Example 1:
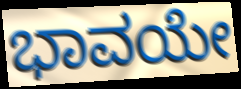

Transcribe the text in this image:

ಭಾವಯೇ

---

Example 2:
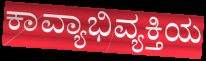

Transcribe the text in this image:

ಕಾವ್ಯಾಭಿವ್ಯಕ್ತಿಯ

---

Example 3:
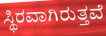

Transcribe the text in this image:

ಸ್ಥಿರವಾಗಿರುತ್ತವೆ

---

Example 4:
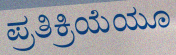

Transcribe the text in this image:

ಪ್ರತಿಕ್ರಿಯೆಯೂ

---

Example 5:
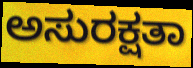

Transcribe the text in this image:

ಅಸುರಕ್ಷತಾ